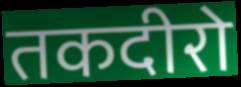
तकदीरो